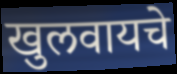
खुलवायचे